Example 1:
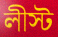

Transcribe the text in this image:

লীস্ট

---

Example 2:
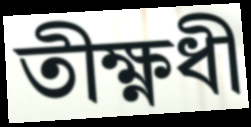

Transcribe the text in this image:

তীক্ষ্ণধী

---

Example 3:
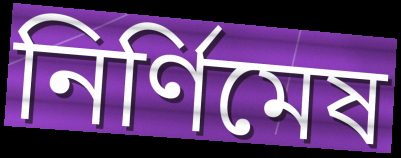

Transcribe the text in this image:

নির্ণিমেষ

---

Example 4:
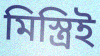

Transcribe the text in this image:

মিস্ত্রিই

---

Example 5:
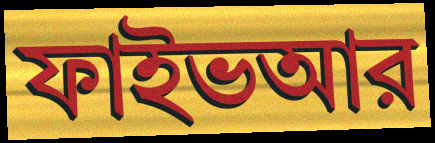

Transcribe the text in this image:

ফাইভআর